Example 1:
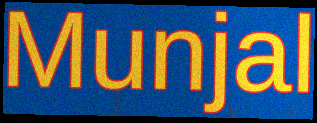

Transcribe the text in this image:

Munjal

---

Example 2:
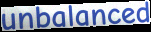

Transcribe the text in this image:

unbalanced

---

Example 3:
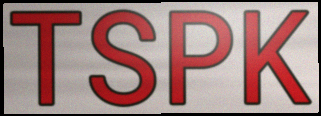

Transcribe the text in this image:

TSPK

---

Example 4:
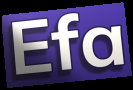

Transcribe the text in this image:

Efa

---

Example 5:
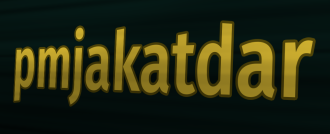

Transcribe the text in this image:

pmjakatdar